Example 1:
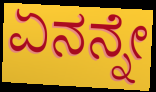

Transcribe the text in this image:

ಏನನ್ನೇ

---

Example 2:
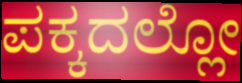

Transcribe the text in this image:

ಪಕ್ಕದಲ್ಲೋ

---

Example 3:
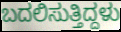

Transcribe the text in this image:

ಬದಲಿಸುತ್ತಿದ್ದಳು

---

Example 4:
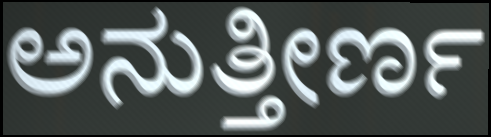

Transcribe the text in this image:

ಅನುತ್ತೀರ್ಣ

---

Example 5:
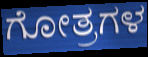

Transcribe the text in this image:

ಗೋತ್ರಗಳ